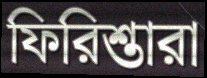
ফিরিশ্তারা